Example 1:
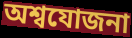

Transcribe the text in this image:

অশ্বযোজনা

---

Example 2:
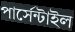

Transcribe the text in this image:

পার্সেন্টাইল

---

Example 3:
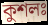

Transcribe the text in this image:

কুশলঃ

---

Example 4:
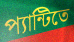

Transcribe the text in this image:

প্যান্টিতে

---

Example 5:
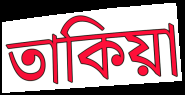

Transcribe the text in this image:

তাকিয়া